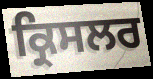
ਕ੍ਰਿਸਲਰ